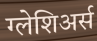
ग्लेशिअर्स